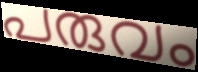
പരുവം